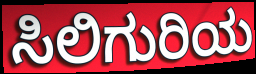
ಸಿಲಿಗುರಿಯ